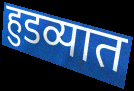
हुडव्यात